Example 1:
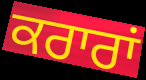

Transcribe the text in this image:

ਕਰਾਰਾਂ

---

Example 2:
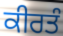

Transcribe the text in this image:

ਕੀਰਤੰ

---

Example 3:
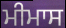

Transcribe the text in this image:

ਮੀਮਾਸ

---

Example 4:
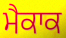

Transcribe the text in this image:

ਮੈਕਾਕ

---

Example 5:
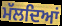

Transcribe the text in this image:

ਮੱਲਦਿਆਂ